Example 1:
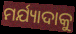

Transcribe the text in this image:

ମର୍ଯ୍ୟାଦାକୁ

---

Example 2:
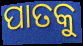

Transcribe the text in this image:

ପାତକୁ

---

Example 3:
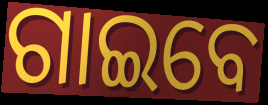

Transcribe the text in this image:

ଗାଇବେ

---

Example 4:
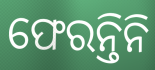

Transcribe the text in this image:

ଫେରନ୍ତିନି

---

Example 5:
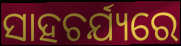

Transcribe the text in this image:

ସାହଚର୍ଯ୍ୟରେ